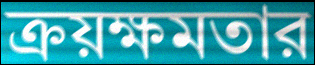
ক্রয়ক্ষমতার